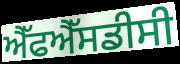
ਐੱਫਐੱਸਡੀਸੀ